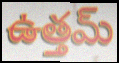
ఉత్తమ్